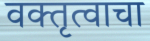
वक्तृत्वाचा